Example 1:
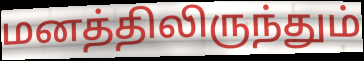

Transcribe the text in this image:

மனத்திலிருந்தும்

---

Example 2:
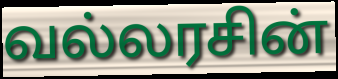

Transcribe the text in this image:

வல்லரசின்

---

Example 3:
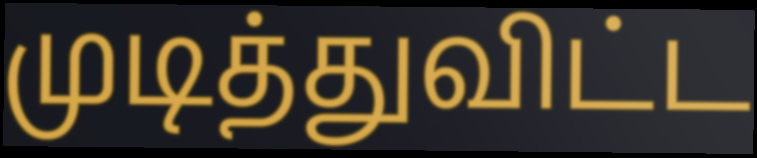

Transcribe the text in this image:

முடித்துவிட்ட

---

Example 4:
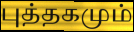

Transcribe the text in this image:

புத்தகமும்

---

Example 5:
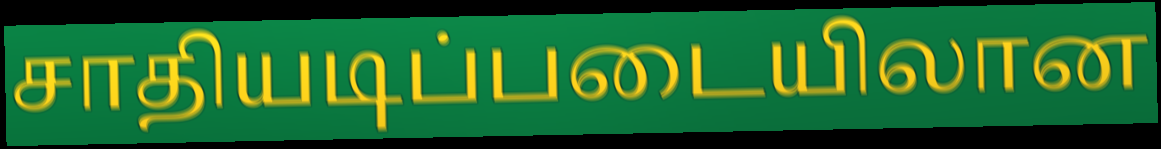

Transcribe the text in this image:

சாதியடிப்படையிலான